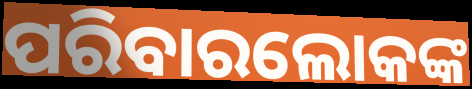
ପରିବାରଲୋକଙ୍କ